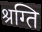
श्रग्ति